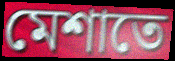
মেশাতে